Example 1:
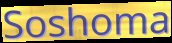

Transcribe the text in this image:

Soshoma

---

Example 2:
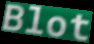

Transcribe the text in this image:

Blot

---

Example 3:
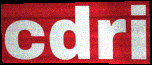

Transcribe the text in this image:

cdri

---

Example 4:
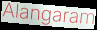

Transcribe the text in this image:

Alangaram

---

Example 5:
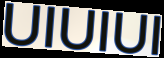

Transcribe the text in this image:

UIUIUI